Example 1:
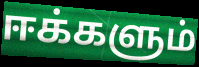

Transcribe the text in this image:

ஈக்களும்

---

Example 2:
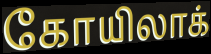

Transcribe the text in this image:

கோயிலாக்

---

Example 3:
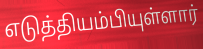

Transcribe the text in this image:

எடுத்தியம்பியுள்ளார்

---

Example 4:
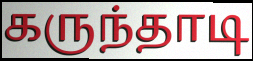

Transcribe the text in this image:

கருந்தாடி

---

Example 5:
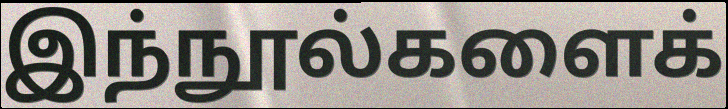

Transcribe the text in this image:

இந்நூல்களைக்